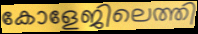
കോളേജിലെത്തി